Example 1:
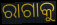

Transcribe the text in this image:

ରାଗାକୁ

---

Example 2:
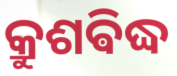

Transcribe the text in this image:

କ୍ରୁଶଵିଦ୍ଧ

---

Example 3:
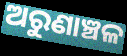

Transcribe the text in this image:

ଅରୁଣାଞ୍ଚଳ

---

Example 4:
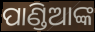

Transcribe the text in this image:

ପାଣ୍ଡିଆଙ୍କ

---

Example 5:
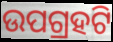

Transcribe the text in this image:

ଉପଗ୍ରହଟି